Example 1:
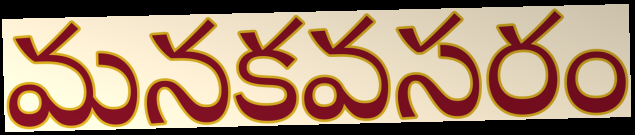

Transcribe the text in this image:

మనకవసరం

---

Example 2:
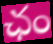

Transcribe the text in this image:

ఛం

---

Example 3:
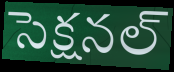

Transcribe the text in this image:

సెక్షనల్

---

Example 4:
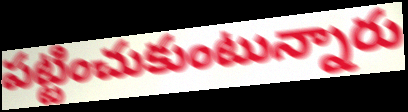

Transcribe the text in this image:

పట్టించుకుంటున్నారు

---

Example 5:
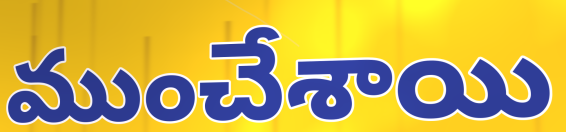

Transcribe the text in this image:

ముంచేశాయి